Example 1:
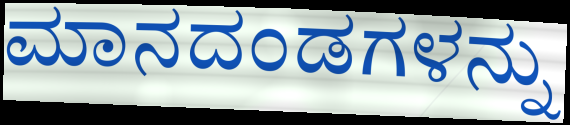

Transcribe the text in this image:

ಮಾನದಂಡಗಳನ್ನು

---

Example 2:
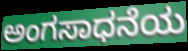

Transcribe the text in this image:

ಅಂಗಸಾಧನೆಯ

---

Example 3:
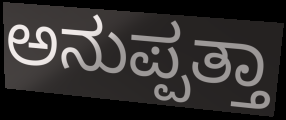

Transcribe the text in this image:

ಅನುಪ್ಪತ್ತಾ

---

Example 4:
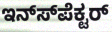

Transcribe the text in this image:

ಇನ್ಸ್‍ಪೆಕ್ಟರ್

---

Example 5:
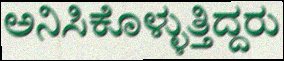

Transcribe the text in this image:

ಅನಿಸಿಕೊಳ್ಳುತ್ತಿದ್ದರು